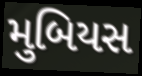
મુબિયસ